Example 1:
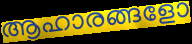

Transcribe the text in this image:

ആഹാരങ്ങളോ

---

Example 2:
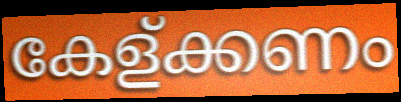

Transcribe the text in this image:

കേള്ക്കണം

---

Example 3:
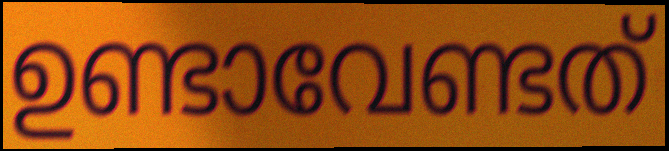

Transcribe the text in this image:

ഉണ്ടാവേണ്ടത്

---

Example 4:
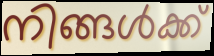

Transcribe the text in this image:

നിങ്ങൾക്ക്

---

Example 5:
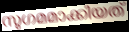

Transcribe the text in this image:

സുഗമമാക്കിയത്